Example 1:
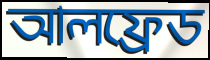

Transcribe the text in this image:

আলফ্ৰেড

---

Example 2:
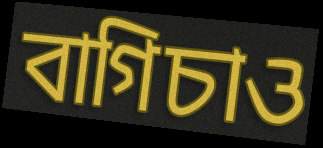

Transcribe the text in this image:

বাগিচাও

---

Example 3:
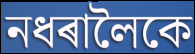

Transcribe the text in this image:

নধৰালৈকে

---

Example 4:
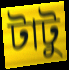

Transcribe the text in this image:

টাটু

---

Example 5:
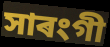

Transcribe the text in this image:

সাৰংগী